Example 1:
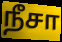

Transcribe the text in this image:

நீசா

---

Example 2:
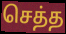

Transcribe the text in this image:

செத்த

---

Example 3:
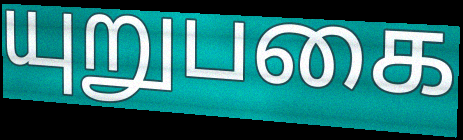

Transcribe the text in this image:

யுறுபகை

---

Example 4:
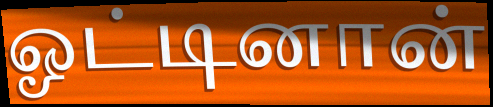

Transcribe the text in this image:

ஓட்டினான்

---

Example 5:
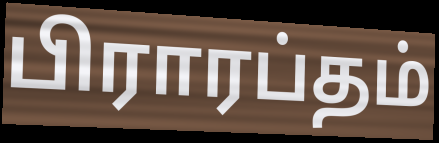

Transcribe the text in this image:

பிராரப்தம்